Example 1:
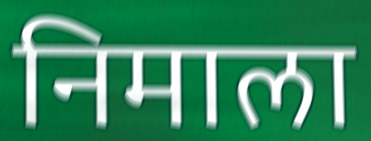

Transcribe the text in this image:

निमाला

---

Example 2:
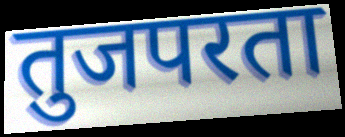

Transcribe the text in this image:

तुजपरता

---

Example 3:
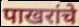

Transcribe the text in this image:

पाखरांचे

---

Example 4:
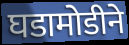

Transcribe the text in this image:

घडामोडीने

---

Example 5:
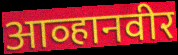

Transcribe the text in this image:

आव्हानवीर